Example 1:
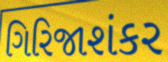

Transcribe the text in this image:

ગિરિજાશંકર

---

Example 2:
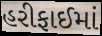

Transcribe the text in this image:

હરીફાઈમાં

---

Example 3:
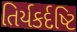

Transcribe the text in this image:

તિર્યકર્દષ્ટિ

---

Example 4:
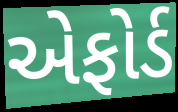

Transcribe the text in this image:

એફોર્ડ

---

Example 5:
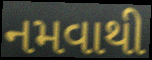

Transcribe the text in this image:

નમવાથી